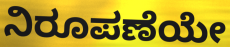
ನಿರೂಪಣೆಯೇ